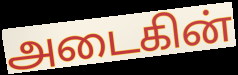
அடைகின்